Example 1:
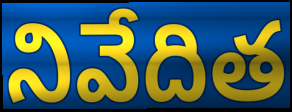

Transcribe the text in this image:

నివేదిత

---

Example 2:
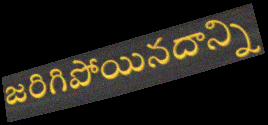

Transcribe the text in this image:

జరిగిపోయినదాన్ని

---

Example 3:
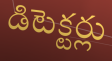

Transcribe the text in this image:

డిటెక్టర్లు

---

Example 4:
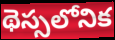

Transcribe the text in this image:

థెస్సలోనిక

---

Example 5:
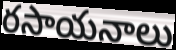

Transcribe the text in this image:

రసాయనాలు